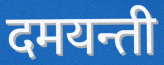
दमयन्ती